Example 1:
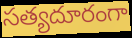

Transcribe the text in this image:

సత్యదూరంగా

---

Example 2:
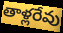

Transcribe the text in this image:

తాళ్లరేవు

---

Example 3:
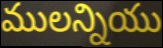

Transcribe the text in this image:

ములన్నియు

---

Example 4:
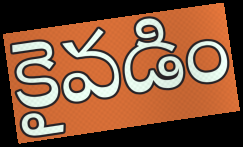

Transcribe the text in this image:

కైవడిం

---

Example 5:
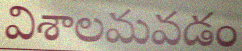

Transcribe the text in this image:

విశాలమవడం